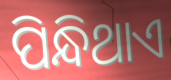
ପିନ୍ଧିଥାଏ